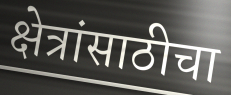
क्षेत्रांसाठीचा